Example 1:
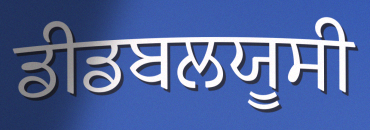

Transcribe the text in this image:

ਡੀਡਬਲਯੂਸੀ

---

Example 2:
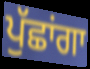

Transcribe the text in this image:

ਪੁੱਛਾਂਗਾ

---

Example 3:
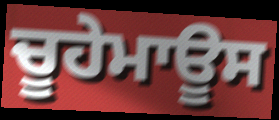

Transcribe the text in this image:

ਚੂਹੇਮਾਊਸ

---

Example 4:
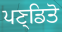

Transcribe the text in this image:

ਪਣ੍ਡਿਤੋ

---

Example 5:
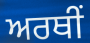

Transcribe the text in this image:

ਅਰਥੀਂ